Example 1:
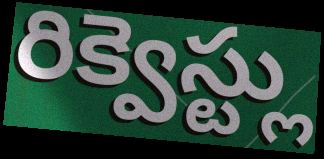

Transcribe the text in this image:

రిక్వెస్ట్లు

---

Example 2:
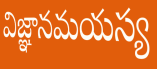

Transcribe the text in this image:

విజ్ఞానమయస్య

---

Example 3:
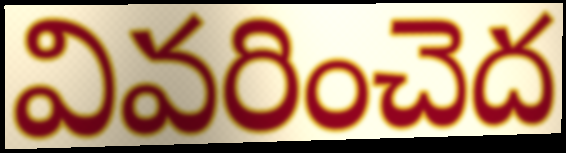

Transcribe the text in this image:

వివరించెద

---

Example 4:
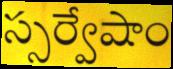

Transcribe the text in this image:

స్సర్వేషాం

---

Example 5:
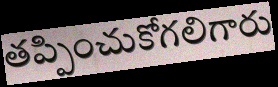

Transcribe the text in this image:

తప్పించుకోగలిగారు